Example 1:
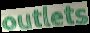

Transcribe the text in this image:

outlets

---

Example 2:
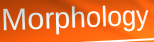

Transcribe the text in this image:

Morphology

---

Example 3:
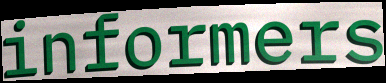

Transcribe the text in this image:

informers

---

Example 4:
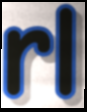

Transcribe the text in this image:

rl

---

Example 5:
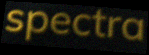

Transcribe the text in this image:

spectra